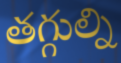
తగ్గుల్ని